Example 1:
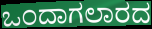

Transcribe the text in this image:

ಒಂದಾಗಲಾರದ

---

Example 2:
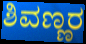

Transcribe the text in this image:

ಶಿವಣ್ಣರ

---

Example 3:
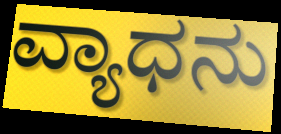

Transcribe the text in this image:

ವ್ಯಾಧನು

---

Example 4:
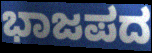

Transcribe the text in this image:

ಭಾಜಪದ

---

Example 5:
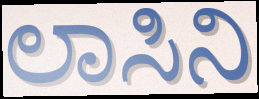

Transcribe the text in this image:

ಲಾಸಿನಿ